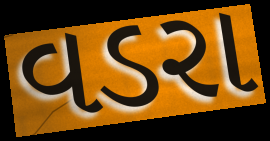
વડરા